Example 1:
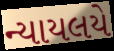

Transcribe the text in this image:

ન્યાયલયે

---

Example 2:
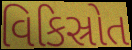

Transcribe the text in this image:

વિકિસ્રોત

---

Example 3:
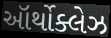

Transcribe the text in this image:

ઑર્થોક્લેઝ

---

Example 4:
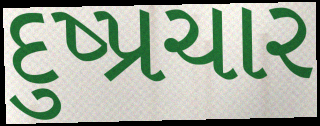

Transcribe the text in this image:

દુષ્પ્રચાર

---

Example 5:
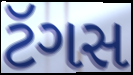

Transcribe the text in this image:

ટૅગસ